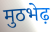
मुठभेढ़